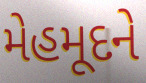
મેહમૂદને